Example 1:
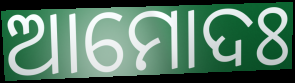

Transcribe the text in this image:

ଆମୋଦଃ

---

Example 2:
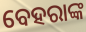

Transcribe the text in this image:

ବେହରାଙ୍କ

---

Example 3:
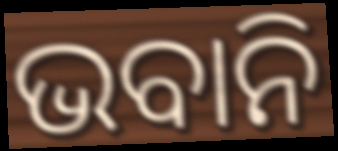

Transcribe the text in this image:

ଭବାନି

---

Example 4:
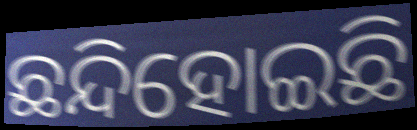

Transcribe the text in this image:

ଛନ୍ଦିହୋଇଛି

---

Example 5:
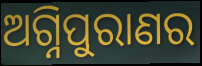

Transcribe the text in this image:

ଅଗ୍ନିପୁରାଣର